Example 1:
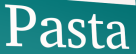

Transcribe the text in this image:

Pasta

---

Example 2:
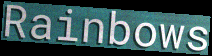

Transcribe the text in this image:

Rainbows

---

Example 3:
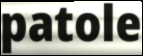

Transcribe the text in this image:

patole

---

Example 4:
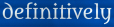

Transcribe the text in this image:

definitively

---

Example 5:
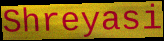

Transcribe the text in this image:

Shreyasi